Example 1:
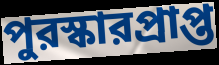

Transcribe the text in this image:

পুরস্কারপ্রাপ্ত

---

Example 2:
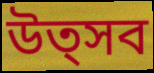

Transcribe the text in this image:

উত্সব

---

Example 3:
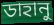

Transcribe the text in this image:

ডাহানু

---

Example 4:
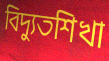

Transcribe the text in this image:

বিদ্যুতশিখা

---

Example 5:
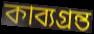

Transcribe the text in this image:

কাব্যগ্রন্ত